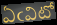
ఏఁవిటో